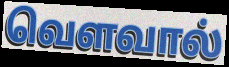
வெளவால்